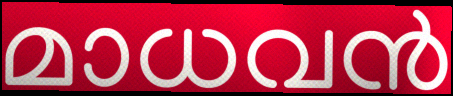
മാധവൻ